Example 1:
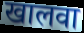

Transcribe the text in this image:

खालवा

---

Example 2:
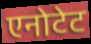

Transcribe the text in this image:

एनोटेट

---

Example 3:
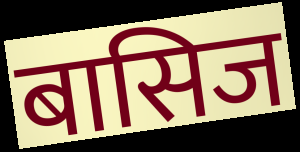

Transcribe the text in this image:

बासिज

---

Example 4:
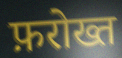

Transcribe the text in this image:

फ़रोख्त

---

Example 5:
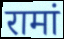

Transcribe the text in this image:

रामां